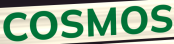
COSMOS